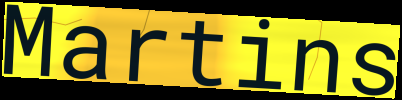
Martins